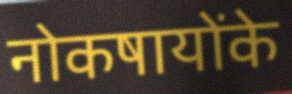
नोकषायोंके